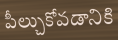
పీల్చుకోవడానికి